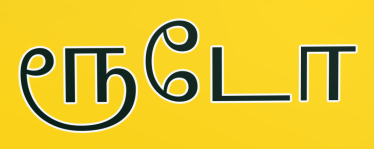
ரூடோ